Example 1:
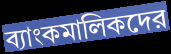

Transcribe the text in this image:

ব্যাংকমালিকদের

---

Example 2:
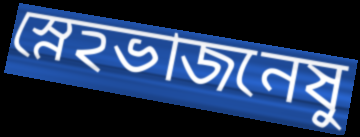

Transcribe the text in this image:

স্নেহভাজনেষু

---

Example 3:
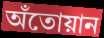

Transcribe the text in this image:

অঁতোয়ান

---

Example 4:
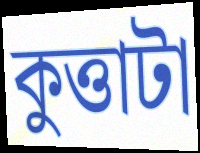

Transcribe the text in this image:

কুত্তাটা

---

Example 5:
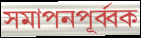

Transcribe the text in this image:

সমাপনপূর্ব্বক